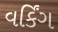
વર્કિંગ